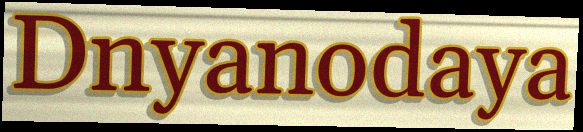
Dnyanodaya